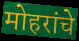
मोहरांचे